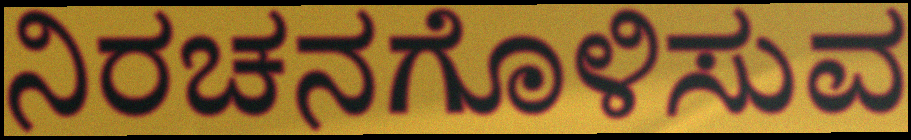
ನಿರಚನಗೊಳಿಸುವ